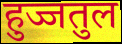
हुज्जतुल